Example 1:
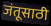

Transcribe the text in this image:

जंतूसाठी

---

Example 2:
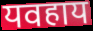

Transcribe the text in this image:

यवहाय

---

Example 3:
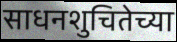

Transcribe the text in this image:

साधनशुचितेच्या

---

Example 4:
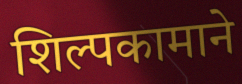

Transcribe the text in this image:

शिल्पकामाने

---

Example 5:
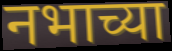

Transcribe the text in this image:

नभाच्या